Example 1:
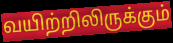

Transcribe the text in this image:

வயிற்றிலிருக்கும்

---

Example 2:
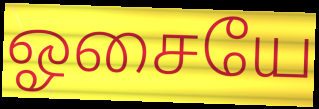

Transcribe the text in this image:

ஓசையே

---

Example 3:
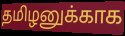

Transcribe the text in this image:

தமிழனுக்காக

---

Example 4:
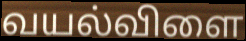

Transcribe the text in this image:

வயல்விளை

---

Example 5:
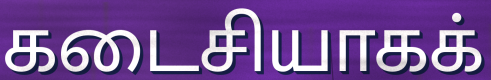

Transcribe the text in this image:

கடைசியாகக்